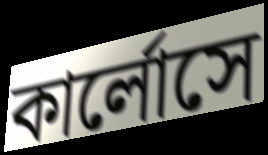
কার্লোসে